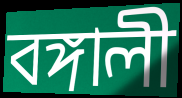
বঙ্গালী